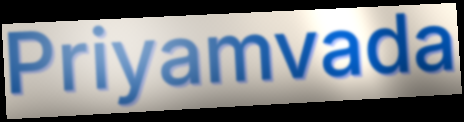
Priyamvada